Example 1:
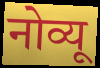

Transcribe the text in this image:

नोव्यू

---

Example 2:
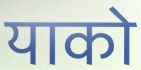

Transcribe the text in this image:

याको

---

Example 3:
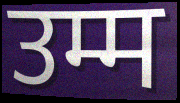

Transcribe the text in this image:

उम्म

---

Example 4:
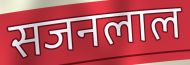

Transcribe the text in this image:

सजनलाल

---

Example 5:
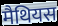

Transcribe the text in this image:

मैथियस